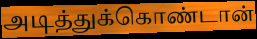
அடித்துக்கொண்டான்